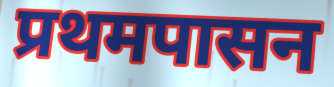
प्रथमपासन